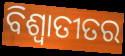
ବିଶ୍ଵାତୀତର